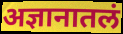
अज्ञानातलं